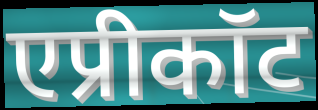
एप्रीकॉट